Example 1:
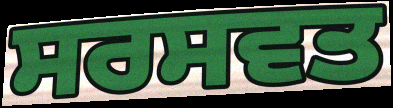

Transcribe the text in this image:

ਸਰਸਵਤ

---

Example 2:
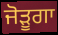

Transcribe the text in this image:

ਜੋੜੂਗਾ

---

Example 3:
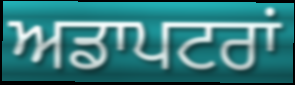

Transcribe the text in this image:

ਅਡਾਪਟਰਾਂ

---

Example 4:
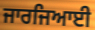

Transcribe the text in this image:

ਜਾਰਜਿਆਈ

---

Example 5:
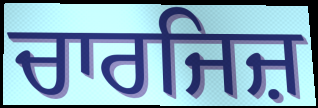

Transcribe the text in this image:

ਚਾਰਜਿਜ਼